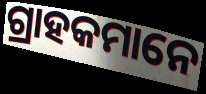
ଗ୍ରାହକମାନେ